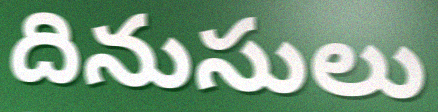
దినుసులు